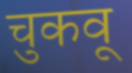
चुकवू